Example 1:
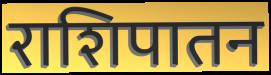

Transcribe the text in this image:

राशिपातन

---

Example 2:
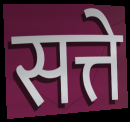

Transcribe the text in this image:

सत्ते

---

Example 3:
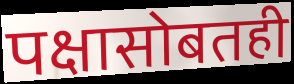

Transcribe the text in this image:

पक्षासोबतही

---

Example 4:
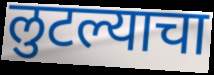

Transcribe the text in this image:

लुटल्याचा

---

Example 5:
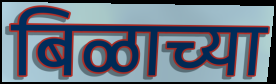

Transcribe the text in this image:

बिळाच्या